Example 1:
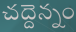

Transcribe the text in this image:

చద్దెన్నం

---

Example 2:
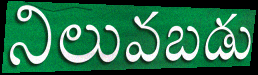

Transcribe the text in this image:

నిలువబడు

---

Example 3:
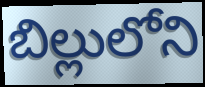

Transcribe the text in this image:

బిల్లులోని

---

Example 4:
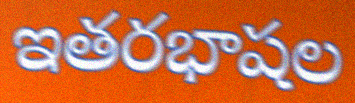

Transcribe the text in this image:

ఇతరభాషల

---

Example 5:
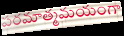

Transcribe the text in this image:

పరమాత్మమయంగా